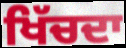
ਖਿੱਚਦਾ